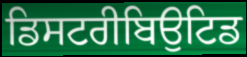
ਡਿਸਟਰੀਬਿਉਟਿਡ